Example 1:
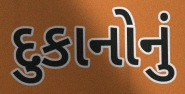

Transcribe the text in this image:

દુકાનોનું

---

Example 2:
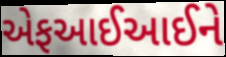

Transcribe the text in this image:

એફઆઈઆઈને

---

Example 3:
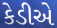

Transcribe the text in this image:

કેડીએ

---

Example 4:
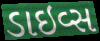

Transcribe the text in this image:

ડાઇવ્સ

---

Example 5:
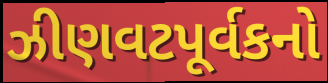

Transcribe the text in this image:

ઝીણવટપૂર્વકનો